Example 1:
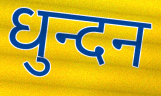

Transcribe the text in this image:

धुन्दन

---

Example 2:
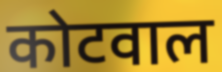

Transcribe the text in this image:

कोटवाल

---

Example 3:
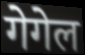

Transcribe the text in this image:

गेगेल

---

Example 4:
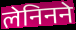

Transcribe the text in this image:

लेनिनने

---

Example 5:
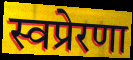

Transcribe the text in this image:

स्वप्रेरणा